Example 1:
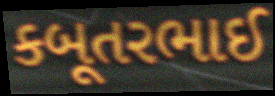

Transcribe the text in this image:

કબૂતરભાઈ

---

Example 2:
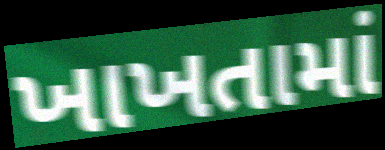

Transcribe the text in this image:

ખાખતામાં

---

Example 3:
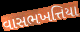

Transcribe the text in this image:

વાસભખત્તિયા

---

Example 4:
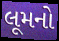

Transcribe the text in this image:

લૂમનો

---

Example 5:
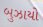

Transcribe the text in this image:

બુઝાયો